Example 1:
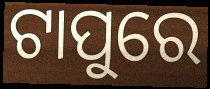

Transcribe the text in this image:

ଟାପୁରେ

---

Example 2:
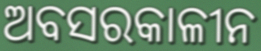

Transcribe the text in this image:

ଅବସରକାଳୀନ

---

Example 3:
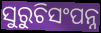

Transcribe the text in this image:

ସୁରୁଚିସଂପନ୍ନ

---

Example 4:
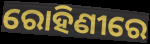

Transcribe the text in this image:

ରୋହିଣୀରେ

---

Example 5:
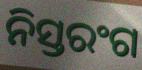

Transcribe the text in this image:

ନିସ୍ତରଂଗ